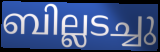
ബില്ലടച്ചു